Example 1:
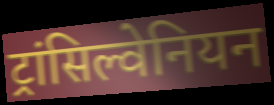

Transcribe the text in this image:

ट्रांसिल्वेनियन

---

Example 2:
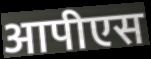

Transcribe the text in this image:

आपीएस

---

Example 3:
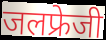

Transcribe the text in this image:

जलफ्रेजी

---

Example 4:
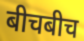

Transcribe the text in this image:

बीचबीच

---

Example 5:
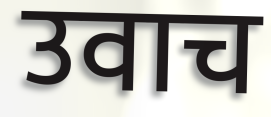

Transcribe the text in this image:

उवाच